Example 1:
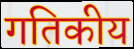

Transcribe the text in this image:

गतिकीय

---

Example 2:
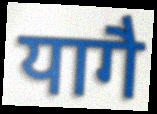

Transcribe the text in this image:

यागै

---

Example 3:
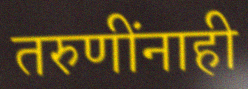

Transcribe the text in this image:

तरुणींनाही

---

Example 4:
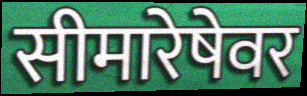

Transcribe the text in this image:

सीमारेषेवर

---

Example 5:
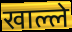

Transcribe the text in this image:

खाल्ले